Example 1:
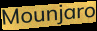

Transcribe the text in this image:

Mounjaro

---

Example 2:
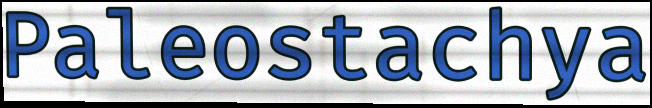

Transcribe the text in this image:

Paleostachya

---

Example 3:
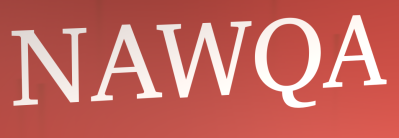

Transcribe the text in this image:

NAWQA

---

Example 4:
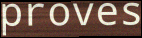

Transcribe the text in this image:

proves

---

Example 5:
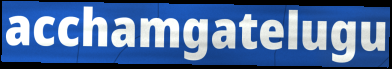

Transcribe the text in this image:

acchamgatelugu